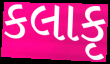
કલાકૃ